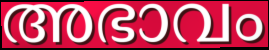
അഭാവം